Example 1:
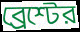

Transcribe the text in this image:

ব্রেশ্টের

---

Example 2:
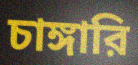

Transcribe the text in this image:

চাঙ্গারি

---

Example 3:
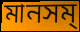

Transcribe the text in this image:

মানসম্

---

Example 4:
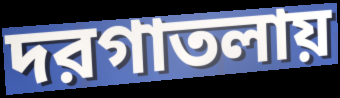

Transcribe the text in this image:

দরগাতলায়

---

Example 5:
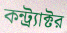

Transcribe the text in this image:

কন্ট্র্যাক্টর